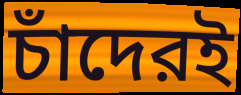
চাঁদেরই